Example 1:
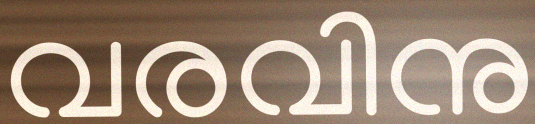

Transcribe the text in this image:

വരവിനു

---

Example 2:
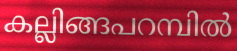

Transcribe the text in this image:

കല്ലിങ്ങപറമ്പിൽ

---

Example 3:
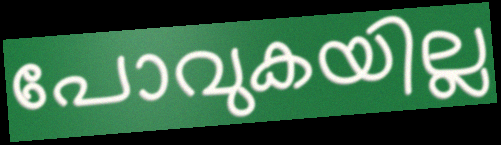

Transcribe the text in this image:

പോവുകയില്ല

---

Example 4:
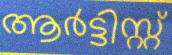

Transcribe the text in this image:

ആർട്ടിസ്റ്റ്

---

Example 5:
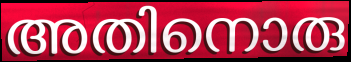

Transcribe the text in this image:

അതിനൊരു